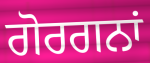
ਗੋਰਗਨਾਂ